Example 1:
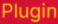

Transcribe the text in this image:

Plugin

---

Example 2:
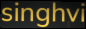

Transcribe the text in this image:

singhvi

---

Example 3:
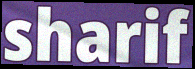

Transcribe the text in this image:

sharif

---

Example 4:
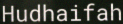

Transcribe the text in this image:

Hudhaifah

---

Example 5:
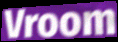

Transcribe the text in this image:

Vroom